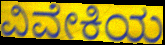
ವಿವೇಕಿಯ